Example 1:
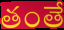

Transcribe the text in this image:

తంతే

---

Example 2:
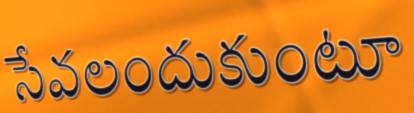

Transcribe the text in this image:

సేవలందుకుంటూ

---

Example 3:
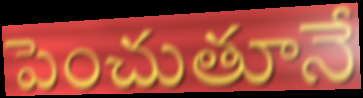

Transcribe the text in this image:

పెంచుతూనే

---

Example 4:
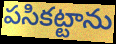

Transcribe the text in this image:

పసికట్టాను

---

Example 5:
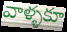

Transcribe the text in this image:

వాళ్ళకూ